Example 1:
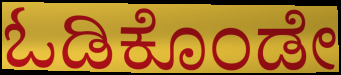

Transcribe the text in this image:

ಓಡಿಕೊಂಡೇ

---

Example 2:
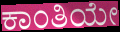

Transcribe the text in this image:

ಕಾಂತಿಯೇ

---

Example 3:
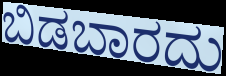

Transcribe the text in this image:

ಬಿಡಬಾರದು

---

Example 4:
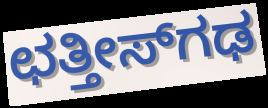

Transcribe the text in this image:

ಛತ್ತೀಸ್‍ಗಢ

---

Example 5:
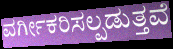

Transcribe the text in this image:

ವರ್ಗೀಕರಿಸಲ್ಪಡುತ್ತವೆ